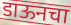
डाऊनचा